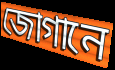
জোগানে